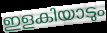
ഇളകിയാടും